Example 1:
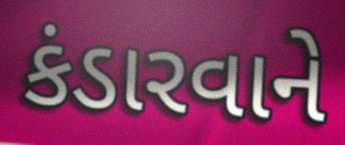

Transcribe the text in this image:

કંડારવાને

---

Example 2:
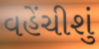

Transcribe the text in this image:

વહેંચીશું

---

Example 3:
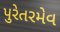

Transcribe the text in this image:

પુરેતરમેવ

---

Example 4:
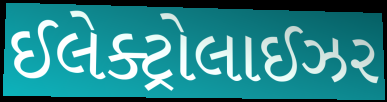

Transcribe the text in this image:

ઈલેક્ટ્રોલાઈઝર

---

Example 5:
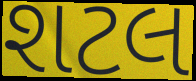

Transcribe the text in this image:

શટલ